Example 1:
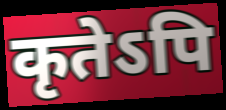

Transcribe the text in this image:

कृतेऽपि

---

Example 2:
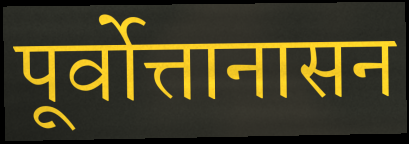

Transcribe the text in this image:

पूर्वोत्तानासन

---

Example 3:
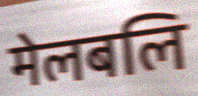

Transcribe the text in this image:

मेलबलि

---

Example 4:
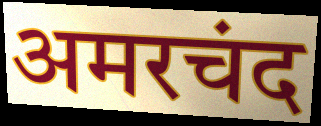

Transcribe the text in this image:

अमरचंद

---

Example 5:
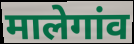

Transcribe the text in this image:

मालेगांव